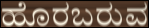
ಹೊರಬರುವ